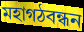
মহাগঠবন্ধন